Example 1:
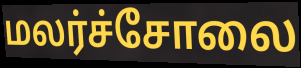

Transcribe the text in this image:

மலர்ச்சோலை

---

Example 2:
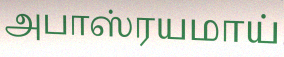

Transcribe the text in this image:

அபாஸ்ரயமாய்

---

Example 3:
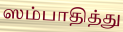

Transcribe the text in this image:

ஸம்பாதித்து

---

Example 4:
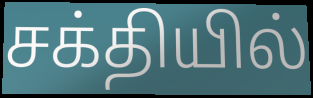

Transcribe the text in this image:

சக்தியில்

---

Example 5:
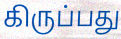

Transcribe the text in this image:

கிருப்பது